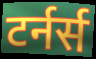
टर्नर्स